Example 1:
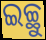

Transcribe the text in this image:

ଇଚ୍ଛୁ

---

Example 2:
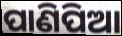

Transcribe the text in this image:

ପାଣିପିଆ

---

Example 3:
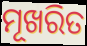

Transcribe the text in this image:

ମୂଖରିତ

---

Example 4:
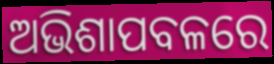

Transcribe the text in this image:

ଅଭିଶାପବଳରେ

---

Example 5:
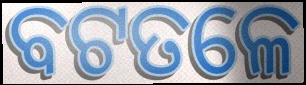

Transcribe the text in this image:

ବଟତଳେ